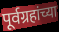
पूर्वग्रहांच्या